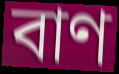
বাণ